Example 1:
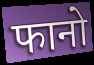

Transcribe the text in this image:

फानो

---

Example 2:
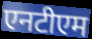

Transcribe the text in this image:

एनटीएम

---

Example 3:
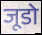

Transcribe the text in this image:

जूडो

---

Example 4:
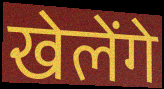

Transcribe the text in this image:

खेलेंगे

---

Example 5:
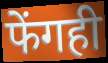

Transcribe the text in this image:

फेंगही